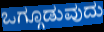
ಒಗ್ಗೂಡುವುದು